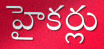
హైకర్లు